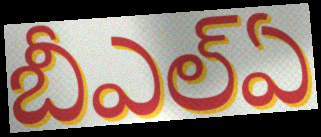
బీఎల్ఏ